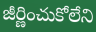
జీర్ణించుకోలేని